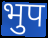
भुप